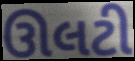
ઊલટી